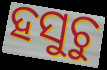
ହସୁଚୁ